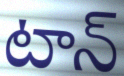
టాన్